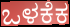
ಒಳಕೆಕ